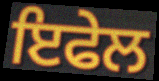
ਇਫੇਲ